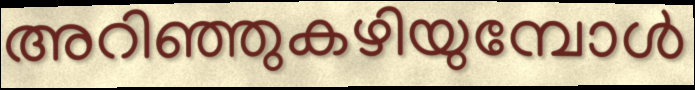
അറിഞ്ഞുകഴിയുമ്പോൾ